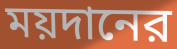
ময়দানের